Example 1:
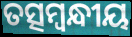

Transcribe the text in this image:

ତତ୍ସମ୍ବନ୍ଧୀୟ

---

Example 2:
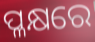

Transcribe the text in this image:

ପ୍ଳକ୍ଷରେ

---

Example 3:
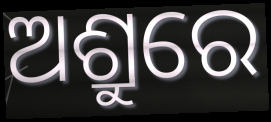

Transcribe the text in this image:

ଅଶ୍ରୁରେ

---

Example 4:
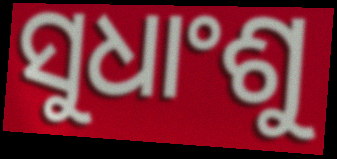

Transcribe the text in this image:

ସୁଧାଂଶୁ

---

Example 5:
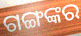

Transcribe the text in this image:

ଗଙ୍ଗଙ୍କର